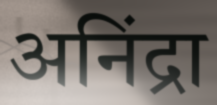
अनिंद्रा